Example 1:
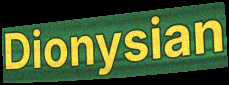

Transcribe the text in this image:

Dionysian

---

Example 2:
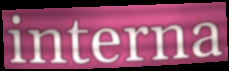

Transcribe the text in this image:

interna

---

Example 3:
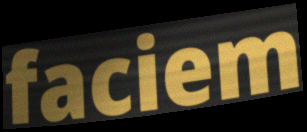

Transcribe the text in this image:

faciem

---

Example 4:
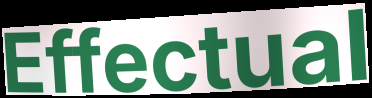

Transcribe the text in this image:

Effectual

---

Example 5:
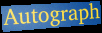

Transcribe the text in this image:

Autograph